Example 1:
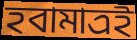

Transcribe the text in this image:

হবামাত্রই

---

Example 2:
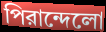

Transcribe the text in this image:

পিরান্দেলো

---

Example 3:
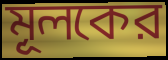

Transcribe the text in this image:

মূলকের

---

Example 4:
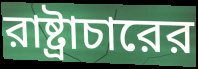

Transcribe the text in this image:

রাষ্ট্রাচারের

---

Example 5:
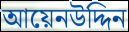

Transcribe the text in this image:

আয়েনউদ্দিন